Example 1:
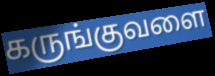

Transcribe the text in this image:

கருங்குவளை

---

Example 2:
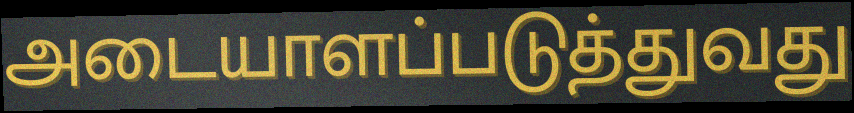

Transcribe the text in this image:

அடையாளப்படுத்துவது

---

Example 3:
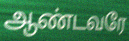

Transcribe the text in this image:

ஆண்டவரே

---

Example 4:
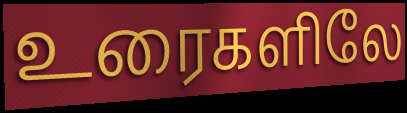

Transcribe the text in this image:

உரைகளிலே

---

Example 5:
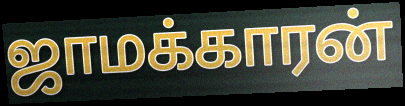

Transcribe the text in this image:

ஜாமக்காரன்